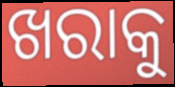
ଖରାକୁ